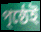
পৃষ্ঠেই